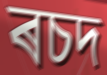
ৰচদ